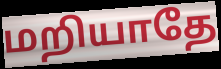
மறியாதே